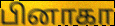
பினாகா